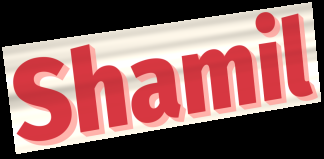
Shamil